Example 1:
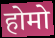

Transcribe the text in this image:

होमो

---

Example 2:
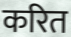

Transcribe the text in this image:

करित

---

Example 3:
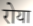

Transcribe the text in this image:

रोया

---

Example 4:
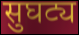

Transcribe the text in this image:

सुघट्य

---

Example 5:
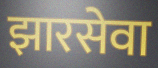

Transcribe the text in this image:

झारसेवा